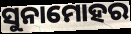
ସୁନାମୋହର